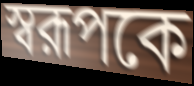
স্বরূপকে